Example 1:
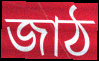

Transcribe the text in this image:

জাঠ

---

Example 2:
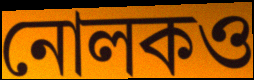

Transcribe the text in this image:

নোলকও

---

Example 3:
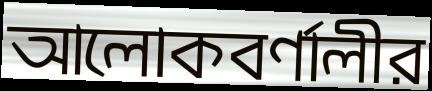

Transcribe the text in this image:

আলোকবর্ণালীর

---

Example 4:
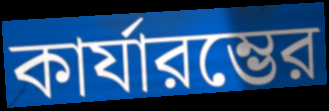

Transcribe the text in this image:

কার্যারম্ভের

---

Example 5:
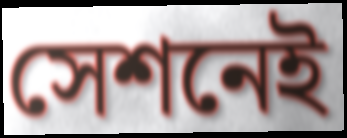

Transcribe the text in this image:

সেশনেই